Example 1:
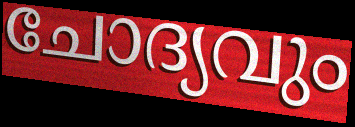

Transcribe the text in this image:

ചോദ്യവും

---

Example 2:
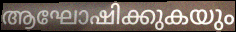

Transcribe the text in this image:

ആഘോഷിക്കുകയും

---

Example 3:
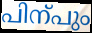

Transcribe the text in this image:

പിന്പും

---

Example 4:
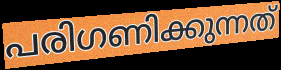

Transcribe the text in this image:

പരിഗണിക്കുന്നത്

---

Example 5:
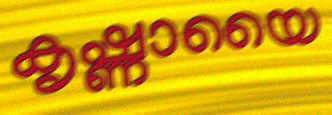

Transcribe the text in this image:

കൃഷ്ണായൈ